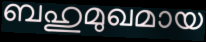
ബഹുമുഖമായ